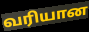
வரியான